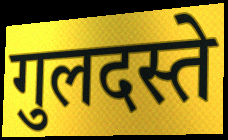
गुलदस्ते